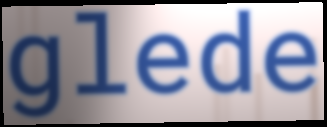
glede